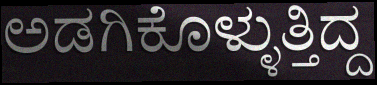
ಅಡಗಿಕೊಳ್ಳುತ್ತಿದ್ದ